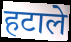
हटाले